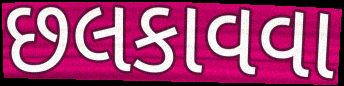
છલકાવવા